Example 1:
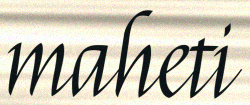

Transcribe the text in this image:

maheti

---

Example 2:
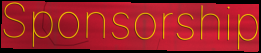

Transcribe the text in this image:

Sponsorship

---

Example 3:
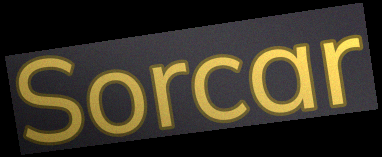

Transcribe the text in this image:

Sorcar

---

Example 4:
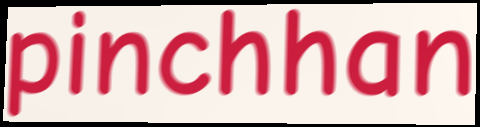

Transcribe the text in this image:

pinchhan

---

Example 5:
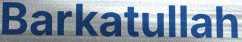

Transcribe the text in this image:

Barkatullah